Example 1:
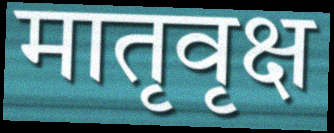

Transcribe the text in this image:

मातृवृक्ष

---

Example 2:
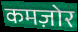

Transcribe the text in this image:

कमज़ोर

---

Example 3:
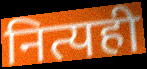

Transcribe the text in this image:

नित्यही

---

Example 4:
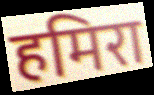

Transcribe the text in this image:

हमिरा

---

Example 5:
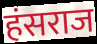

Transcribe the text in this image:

हंसराज